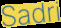
Sadri